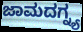
ಜಾಮದಗ್ನ್ಯ